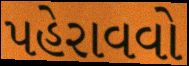
પહેરાવવો